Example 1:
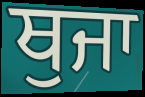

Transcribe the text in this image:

ਥੁਜਾ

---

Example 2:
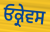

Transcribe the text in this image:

ਓਕ੍ਰੇਵਸ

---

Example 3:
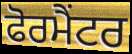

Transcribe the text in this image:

ਫੋਰਮੈਂਟਰ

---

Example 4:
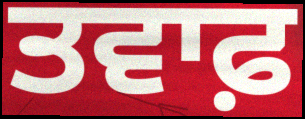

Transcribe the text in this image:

ਤਵਾਫ਼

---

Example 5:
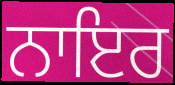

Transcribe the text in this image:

ਨਾਇਰ